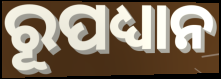
ରୂପଧ୍ୟାନ